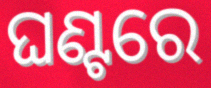
ଘଣ୍ଟରେ